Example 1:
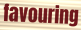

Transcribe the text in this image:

favouring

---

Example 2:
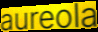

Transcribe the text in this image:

aureola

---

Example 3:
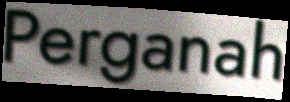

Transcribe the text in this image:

Perganah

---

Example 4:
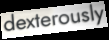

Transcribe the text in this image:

dexterously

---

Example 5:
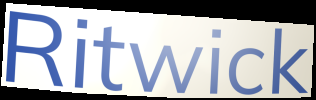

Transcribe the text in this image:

Ritwick